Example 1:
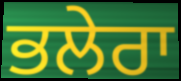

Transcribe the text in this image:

ਭਲੇਰਾ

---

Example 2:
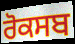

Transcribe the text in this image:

ਰੋਕਸਬ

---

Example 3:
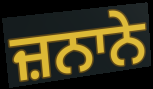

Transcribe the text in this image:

ਜ਼ਨਾਨੇ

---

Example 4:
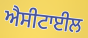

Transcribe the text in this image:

ਐਸੀਟਾਈਲ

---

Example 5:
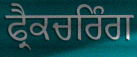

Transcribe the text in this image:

ਫ੍ਰੈਕਚਰਿੰਗ